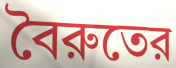
বৈরুতের